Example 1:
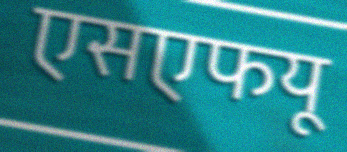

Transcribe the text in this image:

एसएफयू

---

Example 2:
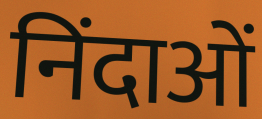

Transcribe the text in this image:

निंदाओं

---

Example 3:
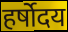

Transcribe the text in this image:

हर्षोदय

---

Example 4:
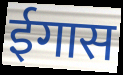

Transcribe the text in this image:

ईगास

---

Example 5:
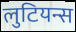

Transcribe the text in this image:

लुटियन्स